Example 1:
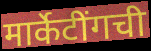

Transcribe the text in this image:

मार्केटींगची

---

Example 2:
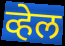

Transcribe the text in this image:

व्हेल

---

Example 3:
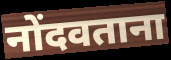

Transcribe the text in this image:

नोंदवताना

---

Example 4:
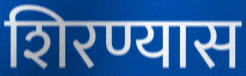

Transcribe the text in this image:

शिरण्यास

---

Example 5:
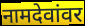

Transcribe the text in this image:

नामदेवांवर